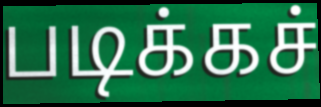
படிக்கச்